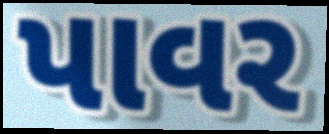
પાવર